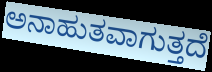
ಅನಾಹುತವಾಗುತ್ತದೆ